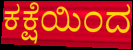
ಕಕ್ಷೆಯಿಂದ